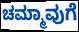
ಚಮ್ಮಾವುಗೆ